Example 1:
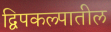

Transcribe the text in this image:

द्विपकल्पातील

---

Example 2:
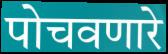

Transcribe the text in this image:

पोचवणारे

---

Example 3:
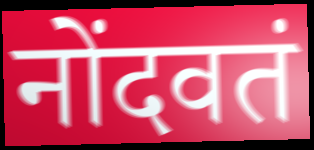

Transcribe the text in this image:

नोंदवतं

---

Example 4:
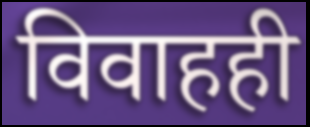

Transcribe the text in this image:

विवाहही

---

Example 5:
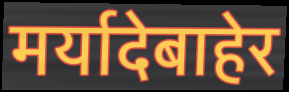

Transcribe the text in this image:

मर्यादेबाहेर